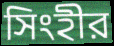
সিংহীর